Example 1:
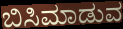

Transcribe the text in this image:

ಬಿಸಿಮಾಡುವ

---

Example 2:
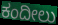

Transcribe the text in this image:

ಕಂದೀಲು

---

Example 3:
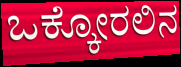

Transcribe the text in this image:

ಒಕ್ಕೋರಲಿನ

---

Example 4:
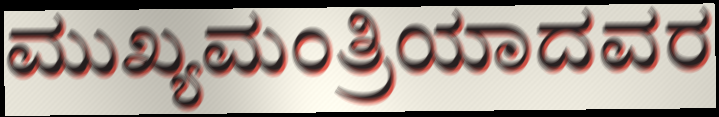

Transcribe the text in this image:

ಮುಖ್ಯಮಂತ್ರಿಯಾದವರ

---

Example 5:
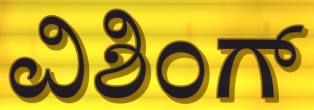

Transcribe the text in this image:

ವಿಶಿಂಗ್